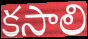
కసాలి